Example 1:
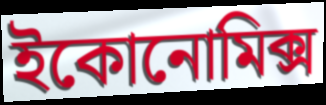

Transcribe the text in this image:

ইকোনোমিক্স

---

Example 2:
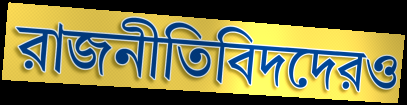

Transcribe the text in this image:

রাজনীতিবিদদেরও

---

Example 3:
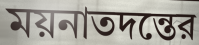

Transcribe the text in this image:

ময়নাতদন্তের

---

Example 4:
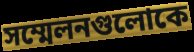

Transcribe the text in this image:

সম্মেলনগুলোকে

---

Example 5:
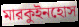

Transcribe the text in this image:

মারকুইনহোস